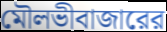
মৌলভীবাজারের